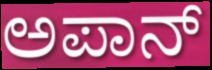
ಅಪಾನ್